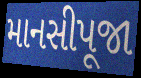
માનસીપૂજા